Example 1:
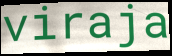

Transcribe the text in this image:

viraja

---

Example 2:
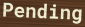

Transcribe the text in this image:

Pending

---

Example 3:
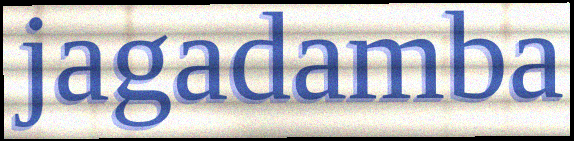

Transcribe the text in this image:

jagadamba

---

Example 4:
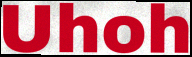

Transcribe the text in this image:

Uhoh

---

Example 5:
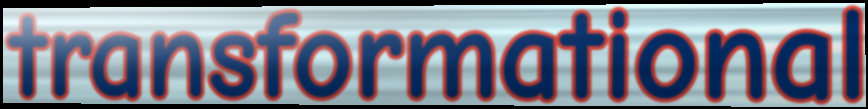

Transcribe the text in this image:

transformational